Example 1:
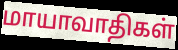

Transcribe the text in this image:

மாயாவாதிகள்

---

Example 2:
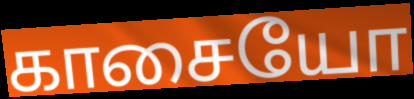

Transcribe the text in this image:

காசையோ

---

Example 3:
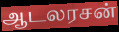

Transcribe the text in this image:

ஆடலரசன்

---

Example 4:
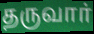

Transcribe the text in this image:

தருவார்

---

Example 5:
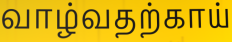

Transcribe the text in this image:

வாழ்வதற்காய்